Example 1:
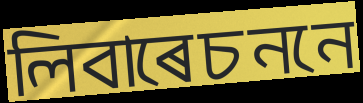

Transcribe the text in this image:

লিবাৰেচননে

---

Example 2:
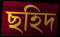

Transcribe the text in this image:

ছহিদ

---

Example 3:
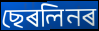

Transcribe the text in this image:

ছেৰলিনৰ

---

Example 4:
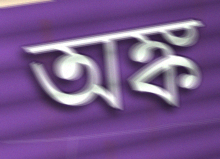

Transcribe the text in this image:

অঙ্ক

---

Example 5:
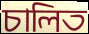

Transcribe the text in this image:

চালিত